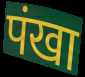
पंखा